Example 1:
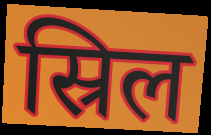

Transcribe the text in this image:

स्रिल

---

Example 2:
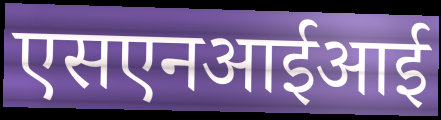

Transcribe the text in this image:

एसएनआईआई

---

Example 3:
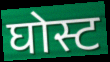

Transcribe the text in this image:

घोस्ट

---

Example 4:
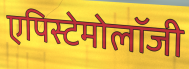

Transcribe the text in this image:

एपिस्टेमोलॉजी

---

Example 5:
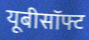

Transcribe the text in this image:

यूबीसॉफ्ट